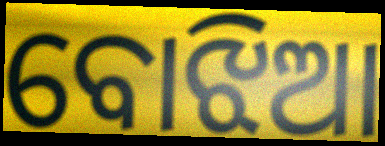
ବୋଝିଆ